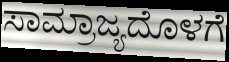
ಸಾಮ್ರಾಜ್ಯದೊಳಗೆ